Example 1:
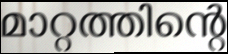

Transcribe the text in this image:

മാറ്റത്തിന്റെ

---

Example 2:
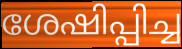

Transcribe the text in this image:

ശേഷിപ്പിച്ച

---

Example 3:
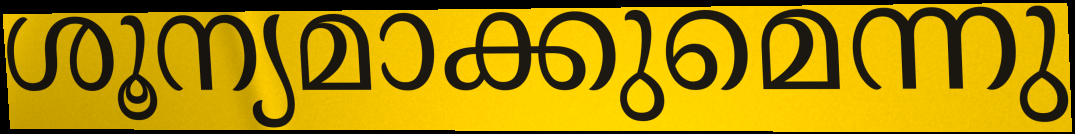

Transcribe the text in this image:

ശൂന്യമാക്കുമെന്നു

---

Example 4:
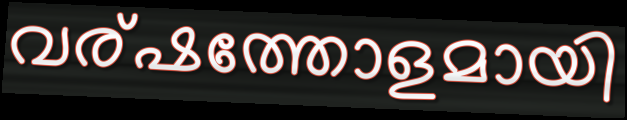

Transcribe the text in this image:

വര്ഷത്തോളമായി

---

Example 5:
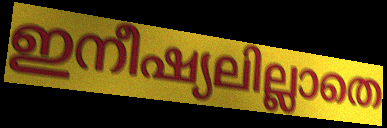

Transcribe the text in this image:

ഇനീഷ്യലില്ലാതെ